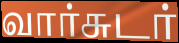
வார்சுடர்